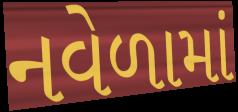
નવેળામાં